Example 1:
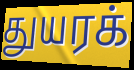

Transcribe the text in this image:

துயரக்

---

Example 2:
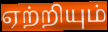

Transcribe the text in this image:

ஏற்றியும்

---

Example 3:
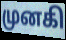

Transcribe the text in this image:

முனகி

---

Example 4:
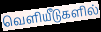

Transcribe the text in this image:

வெளியீடுகளில்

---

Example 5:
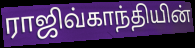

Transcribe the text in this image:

ராஜிவ்காந்தியின்